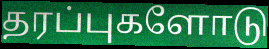
தரப்புகளோடு